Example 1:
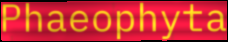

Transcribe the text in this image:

Phaeophyta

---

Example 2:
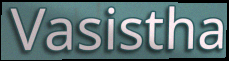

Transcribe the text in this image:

Vasistha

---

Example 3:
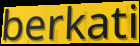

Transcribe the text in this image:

berkati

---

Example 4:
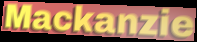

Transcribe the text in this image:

Mackanzie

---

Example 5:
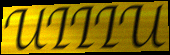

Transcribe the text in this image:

UIIIU